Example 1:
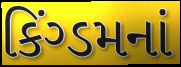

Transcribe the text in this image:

કિંગ્ડમનાં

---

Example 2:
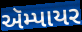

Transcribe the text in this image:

ઍમ્પાયર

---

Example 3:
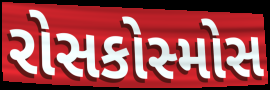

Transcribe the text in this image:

રોસકોસ્મોસ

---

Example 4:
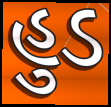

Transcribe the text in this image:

હુડ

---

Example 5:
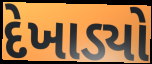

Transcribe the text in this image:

દેખાડ્યો